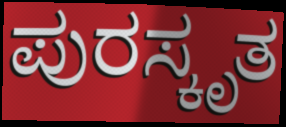
ಪುರಸ್ಕೃತ